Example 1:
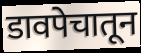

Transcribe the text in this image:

डावपेचातून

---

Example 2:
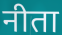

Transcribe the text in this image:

नीता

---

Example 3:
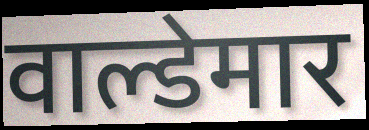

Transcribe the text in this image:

वाल्डेमार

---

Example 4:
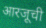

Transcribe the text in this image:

आरजूची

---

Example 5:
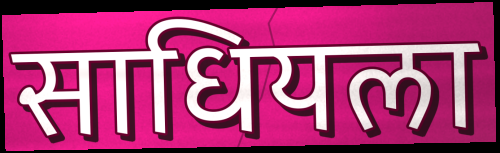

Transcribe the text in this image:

साधियला